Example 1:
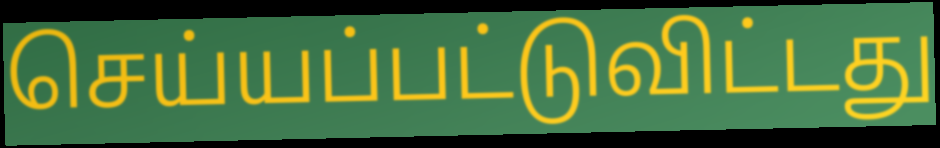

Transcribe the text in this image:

செய்யப்பட்டுவிட்டது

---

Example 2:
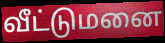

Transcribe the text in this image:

வீட்டுமனை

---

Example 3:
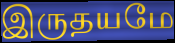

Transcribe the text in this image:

இருதயமே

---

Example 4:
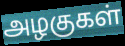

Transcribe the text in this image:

அழகுகள்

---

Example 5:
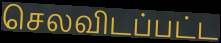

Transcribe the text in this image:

செலவிடப்பட்ட